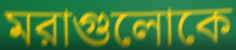
মরাগুলোকে